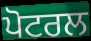
ਪੋਟਰਲ